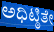
ಅಧಿಟ್ಠಿತೇ